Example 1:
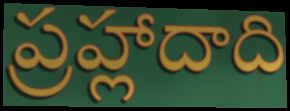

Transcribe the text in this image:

ప్రహ్లాదాది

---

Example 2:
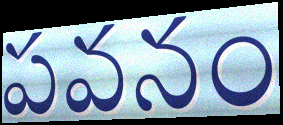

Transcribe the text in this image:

పవనం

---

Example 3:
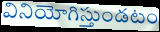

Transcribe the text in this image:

వినియోగిస్తుండటం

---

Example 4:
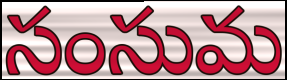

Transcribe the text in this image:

సంసుమ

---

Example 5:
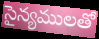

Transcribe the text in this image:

సైన్యములతో